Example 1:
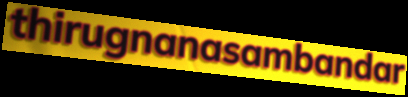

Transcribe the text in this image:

thirugnanasambandar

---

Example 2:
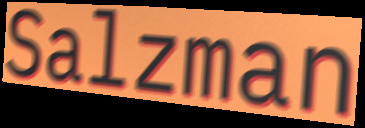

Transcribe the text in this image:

Salzman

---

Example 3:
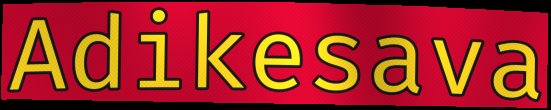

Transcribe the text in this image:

Adikesava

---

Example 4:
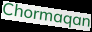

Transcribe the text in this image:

Chormaqan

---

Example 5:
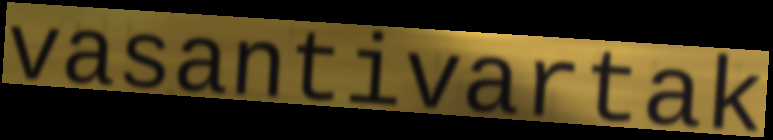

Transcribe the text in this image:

vasantivartak